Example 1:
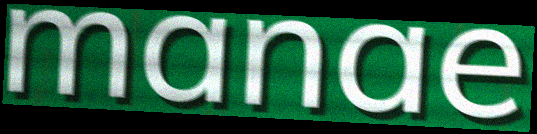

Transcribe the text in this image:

manae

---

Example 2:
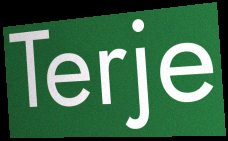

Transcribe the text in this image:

Terje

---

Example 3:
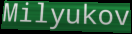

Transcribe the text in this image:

Milyukov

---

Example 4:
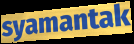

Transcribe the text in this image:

syamantak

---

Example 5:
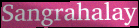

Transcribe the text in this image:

Sangrahalay